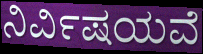
ನಿರ್ವಿಷಯವೆ